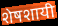
शेषशायी